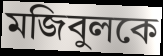
মজিবুলকে